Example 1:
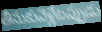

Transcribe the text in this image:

తీసుకువెళ్లేటప్పుడు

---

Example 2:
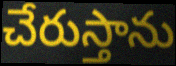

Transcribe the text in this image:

చేరుస్తాను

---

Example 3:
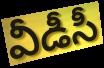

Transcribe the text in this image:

వీడీసీ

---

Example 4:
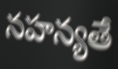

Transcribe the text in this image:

నహన్యతే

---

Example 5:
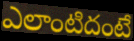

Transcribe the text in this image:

ఎలాంటిదంటే